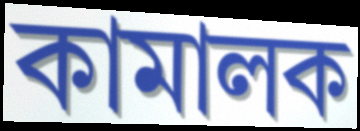
কামালক